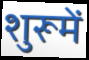
शुरूमें